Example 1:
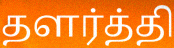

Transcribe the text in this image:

தளர்த்தி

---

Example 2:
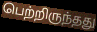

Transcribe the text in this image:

பெற்றிருந்தது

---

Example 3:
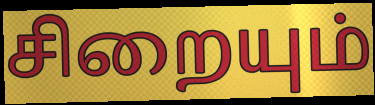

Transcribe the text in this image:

சிறையும்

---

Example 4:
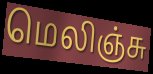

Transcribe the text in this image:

மெலிஞ்சு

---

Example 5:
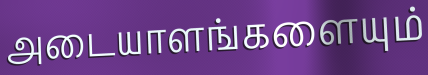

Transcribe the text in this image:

அடையாளங்களையும்